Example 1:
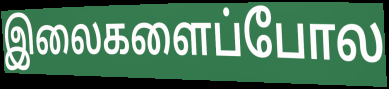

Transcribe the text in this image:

இலைகளைப்போல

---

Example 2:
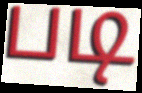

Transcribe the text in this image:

படி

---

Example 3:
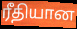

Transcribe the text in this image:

ரீதியான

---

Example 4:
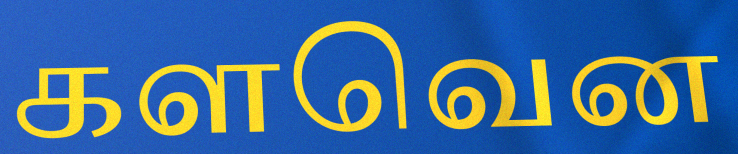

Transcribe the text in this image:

களவென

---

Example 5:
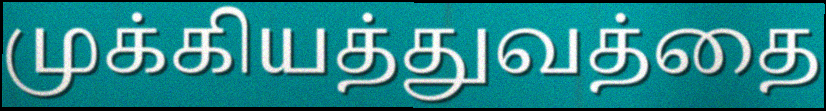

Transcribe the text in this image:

முக்கியத்துவத்தை